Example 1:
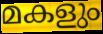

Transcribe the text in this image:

മകളും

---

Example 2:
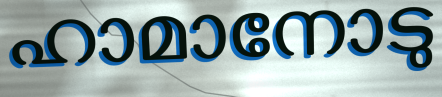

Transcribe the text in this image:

ഹാമാനോടു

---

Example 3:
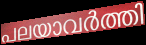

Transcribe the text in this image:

പലയാവർത്തി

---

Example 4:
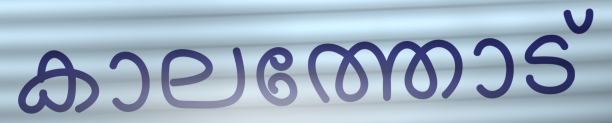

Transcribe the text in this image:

കാലത്തോട്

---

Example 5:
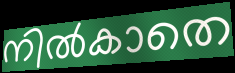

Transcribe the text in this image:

നിൽകാതെ